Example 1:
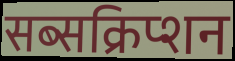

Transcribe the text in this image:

सब्सक्रिप्शन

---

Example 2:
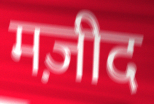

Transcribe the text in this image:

मज़ीद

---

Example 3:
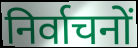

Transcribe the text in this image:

निर्वाचनों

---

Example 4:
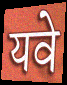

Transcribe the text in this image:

यवे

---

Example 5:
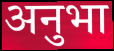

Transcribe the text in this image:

अनुभा